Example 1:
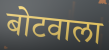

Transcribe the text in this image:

बोटवाला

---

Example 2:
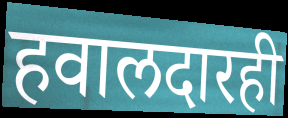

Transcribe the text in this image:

हवालदारही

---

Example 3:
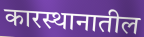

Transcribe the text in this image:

कारस्थानातील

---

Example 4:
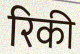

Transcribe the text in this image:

रिकी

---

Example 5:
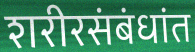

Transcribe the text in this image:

शरीरसंबंधांत